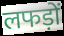
लफड़ों